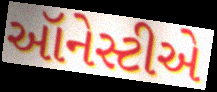
ઑનેસ્ટીએ